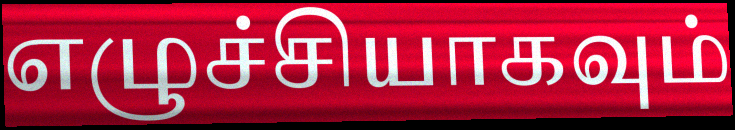
எழுச்சியாகவும்